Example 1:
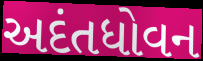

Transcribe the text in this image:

અદંતધોવન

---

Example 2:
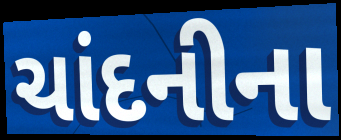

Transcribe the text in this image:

ચાંદનીના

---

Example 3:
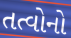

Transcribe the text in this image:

તત્વોનો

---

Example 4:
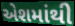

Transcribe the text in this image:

એશમાંથી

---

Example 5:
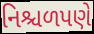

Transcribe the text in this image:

નિશ્ચળપણે